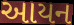
આયન